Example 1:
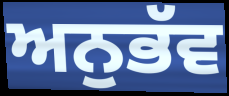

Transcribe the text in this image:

ਅਨੁਭੱਵ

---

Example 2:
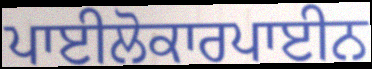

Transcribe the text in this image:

ਪਾਈਲੋਕਾਰਪਾਈਨ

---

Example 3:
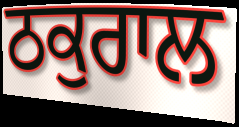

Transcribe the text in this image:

ਠਕੁਰਾਲ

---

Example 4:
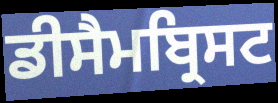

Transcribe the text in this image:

ਡੀਸੈਮਬ੍ਰਿਸਟ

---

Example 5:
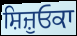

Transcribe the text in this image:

ਸ਼ਿਜ਼ੁਓਕਾ